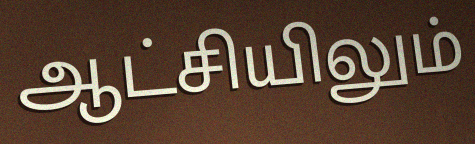
ஆட்சியிலும்